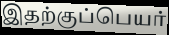
இதற்குப்பெயர்